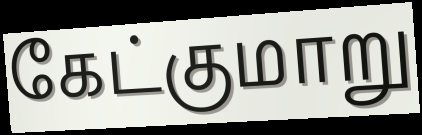
கேட்குமாறு